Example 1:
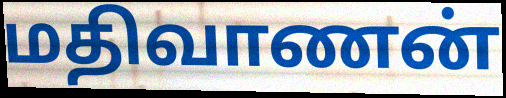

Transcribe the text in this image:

மதிவாணன்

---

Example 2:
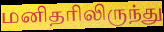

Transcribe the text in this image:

மனிதரிலிருந்து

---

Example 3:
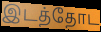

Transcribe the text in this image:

இடத்தோட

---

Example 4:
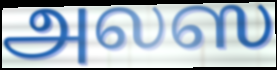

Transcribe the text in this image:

அலஸ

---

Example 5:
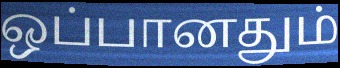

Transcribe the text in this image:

ஒப்பானதும்